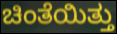
ಚಿಂತೆಯಿತ್ತು